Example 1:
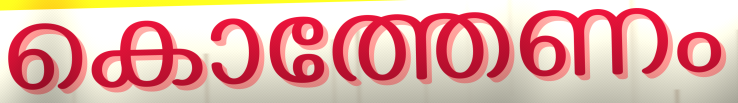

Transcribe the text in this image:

കൊത്തേണം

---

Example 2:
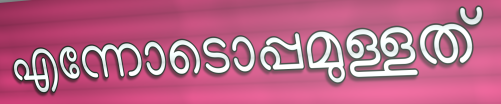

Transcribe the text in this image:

എന്നോടൊപ്പമുള്ളത്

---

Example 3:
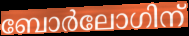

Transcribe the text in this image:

ബോർലോഗിന്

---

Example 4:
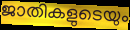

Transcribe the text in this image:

ജാതികളുടെയും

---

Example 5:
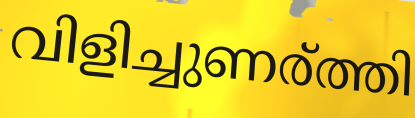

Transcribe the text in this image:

വിളിച്ചുണര്ത്തി